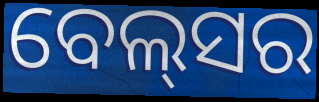
ବେଲ୍‌ସର